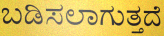
ಬಡಿಸಲಾಗುತ್ತದೆ